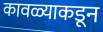
कावळ्याकडून